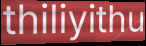
thiliyithu